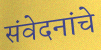
संवेदनांचे